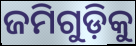
ଜମିଗୁଡ଼ିକୁ